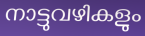
നാട്ടുവഴികളും